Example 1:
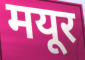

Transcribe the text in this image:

मयूर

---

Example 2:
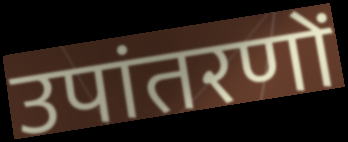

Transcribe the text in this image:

उपांतरणों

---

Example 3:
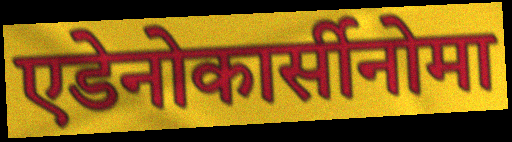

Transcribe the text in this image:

एडेनोकार्सीनोमा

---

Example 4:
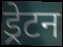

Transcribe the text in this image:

ड्रेटन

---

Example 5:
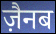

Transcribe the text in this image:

ज़ैनब